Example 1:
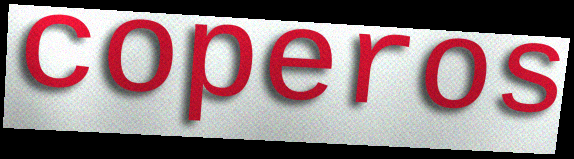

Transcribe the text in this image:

coperos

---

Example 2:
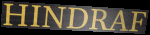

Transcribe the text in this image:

HINDRAF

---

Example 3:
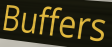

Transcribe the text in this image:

Buffers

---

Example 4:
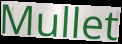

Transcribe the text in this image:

Mullet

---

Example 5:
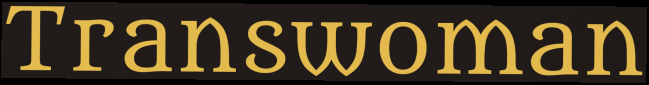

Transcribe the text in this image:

Transwoman